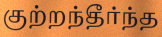
குற்றந்தீர்ந்த